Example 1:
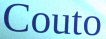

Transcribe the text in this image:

Couto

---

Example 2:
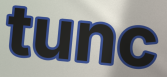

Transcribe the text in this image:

tunc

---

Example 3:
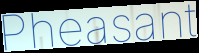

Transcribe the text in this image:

Pheasant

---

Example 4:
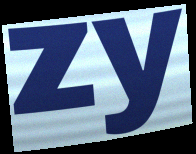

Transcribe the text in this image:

zy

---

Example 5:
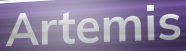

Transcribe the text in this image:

Artemis